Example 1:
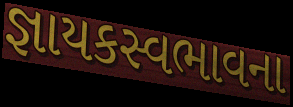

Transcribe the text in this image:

જ્ઞાયકસ્વભાવના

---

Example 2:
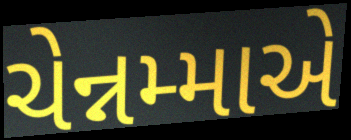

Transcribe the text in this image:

ચેન્નમ્માએ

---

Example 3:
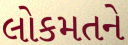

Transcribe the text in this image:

લોકમતને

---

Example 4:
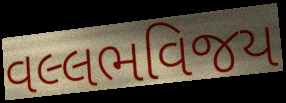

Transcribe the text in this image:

વલ્લભવિજય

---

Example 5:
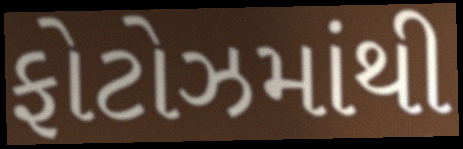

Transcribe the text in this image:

ફોટોઝમાંથી